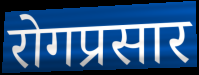
रोगप्रसार